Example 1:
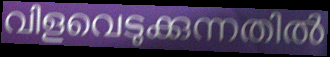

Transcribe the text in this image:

വിളവെടുക്കുന്നതിൽ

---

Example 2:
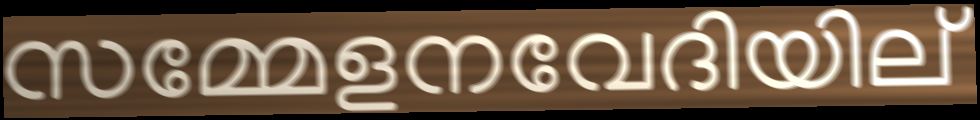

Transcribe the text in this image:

സമ്മേളനവേദിയില്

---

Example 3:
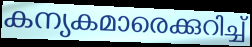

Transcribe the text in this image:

കന്യകമാരെക്കുറിച്ച്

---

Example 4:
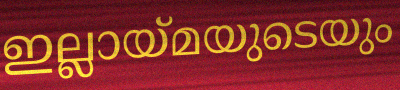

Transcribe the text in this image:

ഇല്ലായ്മയുടെയും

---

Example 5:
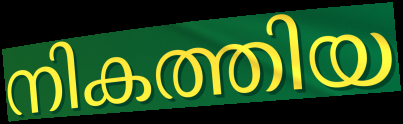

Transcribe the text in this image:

നികത്തിയ